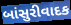
બાંસુરીવાદક